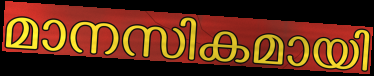
മാനസികമായി